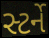
સ્ટર્ને